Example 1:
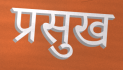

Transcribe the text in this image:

प्रसुख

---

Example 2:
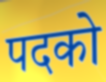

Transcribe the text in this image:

पदको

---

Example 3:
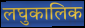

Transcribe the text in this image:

लघुकालिक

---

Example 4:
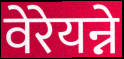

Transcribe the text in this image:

वेरेयन्ने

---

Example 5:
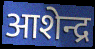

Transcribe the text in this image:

आशेन्द्र